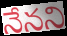
నేనని